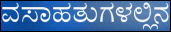
ವಸಾಹತುಗಳಲ್ಲಿನ